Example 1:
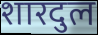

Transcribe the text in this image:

शारदुल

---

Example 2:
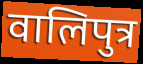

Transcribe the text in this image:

वालिपुत्र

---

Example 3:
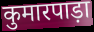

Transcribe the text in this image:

कुमारपाड़ा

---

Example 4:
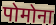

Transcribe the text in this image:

पोमोना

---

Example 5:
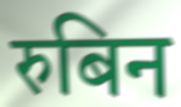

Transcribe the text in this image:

रुबिन